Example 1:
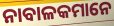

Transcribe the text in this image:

ନାବାଳକମାନେ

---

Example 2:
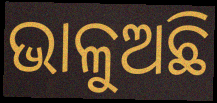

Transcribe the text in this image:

ଭାଳୁଅଛି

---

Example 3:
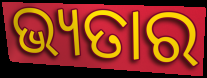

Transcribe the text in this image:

ଭ୍ୟତାର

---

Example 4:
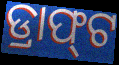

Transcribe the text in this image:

ଡ୍ରାଫ୍‌ଟ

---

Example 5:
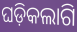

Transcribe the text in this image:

ଘଡ଼ିକଲାଗି